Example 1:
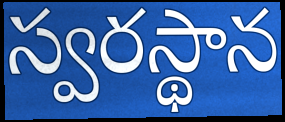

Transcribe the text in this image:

స్వరస్థాన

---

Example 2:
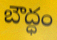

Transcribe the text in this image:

బౌద్ధం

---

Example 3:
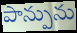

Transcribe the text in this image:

పాన్పును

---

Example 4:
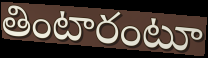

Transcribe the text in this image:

తింటారంటూ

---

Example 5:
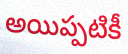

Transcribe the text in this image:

అయిప్పటికీ